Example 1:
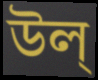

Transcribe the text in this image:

উল্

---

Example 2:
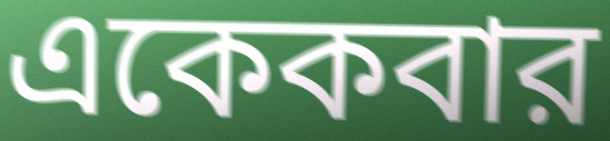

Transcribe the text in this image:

একেকবার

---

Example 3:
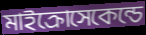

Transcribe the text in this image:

মাইক্রোসেকেন্ডে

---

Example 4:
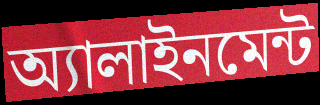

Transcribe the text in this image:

অ্যালাইনমেন্ট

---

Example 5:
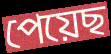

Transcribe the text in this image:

পেয়েছ